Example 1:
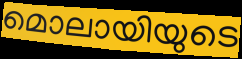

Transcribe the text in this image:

മൊലായിയുടെ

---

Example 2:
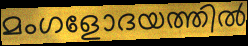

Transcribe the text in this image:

മംഗളോദയത്തിൽ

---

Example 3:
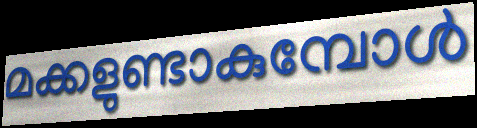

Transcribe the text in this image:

മക്കളുണ്ടാകുമ്പോൾ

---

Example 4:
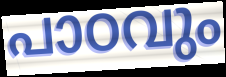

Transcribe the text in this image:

പാഠവും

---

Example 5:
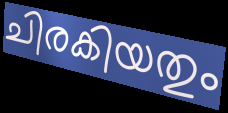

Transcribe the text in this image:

ചിരകിയതും